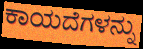
ಕಾಯದೆಗಳನ್ನು